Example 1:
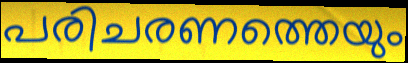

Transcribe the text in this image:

പരിചരണത്തെയും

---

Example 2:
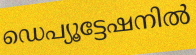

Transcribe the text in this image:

ഡെപ്യൂട്ടേഷനിൽ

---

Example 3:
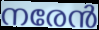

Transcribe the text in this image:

നരേൻ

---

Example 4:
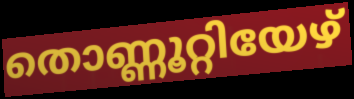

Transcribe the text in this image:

തൊണ്ണൂറ്റിയേഴ്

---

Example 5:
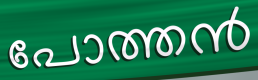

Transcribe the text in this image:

പോത്തൻ